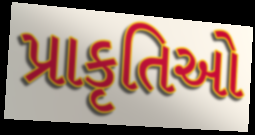
પ્રાકૃતિઓ